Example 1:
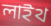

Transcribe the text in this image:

লাইথ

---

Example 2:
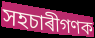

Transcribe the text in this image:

সহচাৰীগণক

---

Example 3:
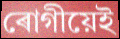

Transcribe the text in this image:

ৰোগীয়েই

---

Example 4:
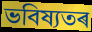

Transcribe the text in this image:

ভবিষ্যতৰ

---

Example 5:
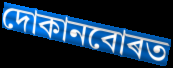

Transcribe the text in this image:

দোকানবোৰত